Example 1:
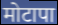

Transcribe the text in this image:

मोटापा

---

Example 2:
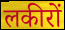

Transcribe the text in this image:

लकीरों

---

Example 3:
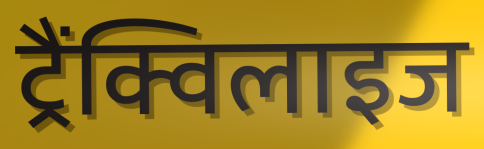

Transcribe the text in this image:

ट्रैंक्विलाइज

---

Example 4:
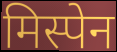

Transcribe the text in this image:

मिस्पेन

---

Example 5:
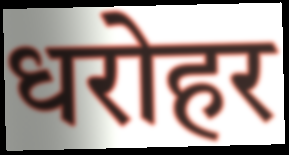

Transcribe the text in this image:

धरोहर